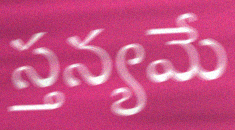
స్తన్యమే